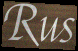
Rus